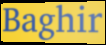
Baghir